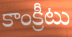
కాంక్రీటు